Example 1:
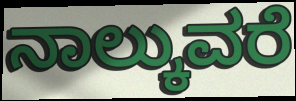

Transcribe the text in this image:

ನಾಲ್ಕುವರೆ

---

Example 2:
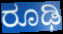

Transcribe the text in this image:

ರೂಢಿ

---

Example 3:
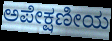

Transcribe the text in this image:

ಅಪೇಕ್ಷಣೀಯ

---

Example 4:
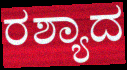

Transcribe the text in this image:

ರಶ್ಯಾದ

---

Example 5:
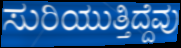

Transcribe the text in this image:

ಸುರಿಯುತ್ತಿದ್ದೆವು